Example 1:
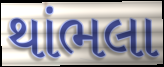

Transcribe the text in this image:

થાંભલા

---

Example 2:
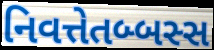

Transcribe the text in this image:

નિવત્તેતબ્બસ્સ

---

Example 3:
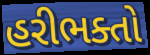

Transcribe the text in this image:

હરીભક્તો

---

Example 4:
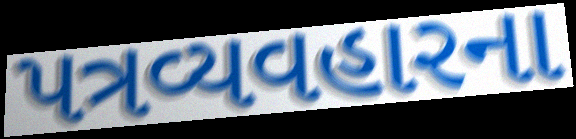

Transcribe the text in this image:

પત્રવ્યવહારના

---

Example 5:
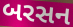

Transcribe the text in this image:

બરસન